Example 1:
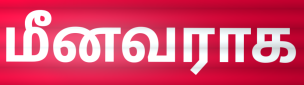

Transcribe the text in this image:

மீனவராக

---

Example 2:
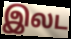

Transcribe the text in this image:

இலட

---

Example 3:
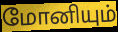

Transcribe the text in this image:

மோனியும்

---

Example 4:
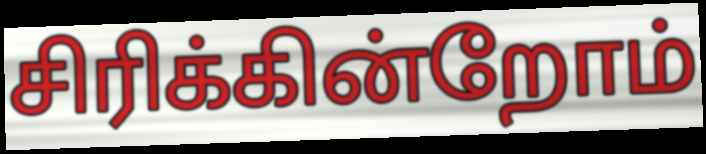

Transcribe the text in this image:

சிரிக்கின்றோம்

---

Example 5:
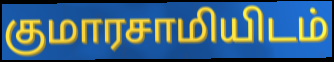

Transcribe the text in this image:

குமாரசாமியிடம்